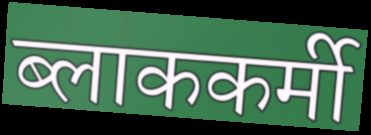
ब्लाककर्मी